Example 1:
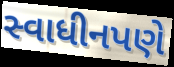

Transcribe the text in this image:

સ્વાધીનપણે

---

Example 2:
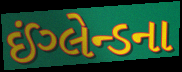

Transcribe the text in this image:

ઈંગ્લેન્ડના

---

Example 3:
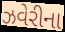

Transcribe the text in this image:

ઝવેરીના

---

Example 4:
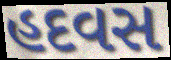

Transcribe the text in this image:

હદવસ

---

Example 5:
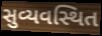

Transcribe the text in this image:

સુવ્યવસ્થિત